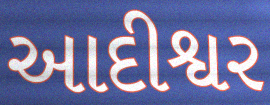
આદીશ્વર